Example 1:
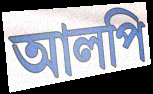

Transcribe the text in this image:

আলপি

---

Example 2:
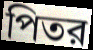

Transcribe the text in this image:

পিতর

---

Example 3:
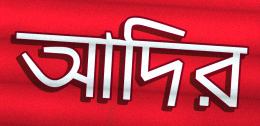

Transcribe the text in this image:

আদির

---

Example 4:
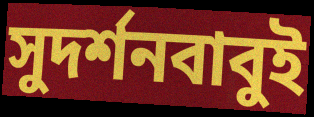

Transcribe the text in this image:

সুদর্শনবাবুই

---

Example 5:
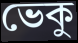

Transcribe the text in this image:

ভেকু